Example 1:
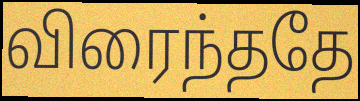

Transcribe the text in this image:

விரைந்ததே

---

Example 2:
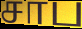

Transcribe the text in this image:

சாப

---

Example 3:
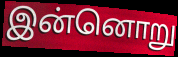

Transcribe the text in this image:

இன்னொறு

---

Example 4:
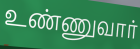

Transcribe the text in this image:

உண்ணுவார்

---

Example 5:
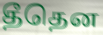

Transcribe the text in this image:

தீதென